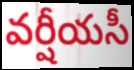
వర్షీయసీ